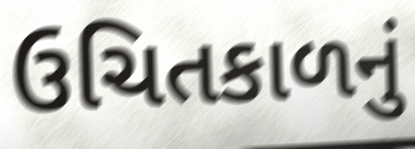
ઉચિતકાળનું